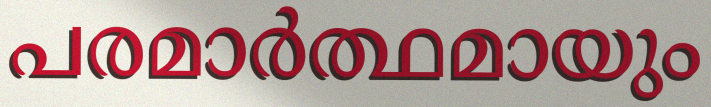
പരമാർത്ഥമായും